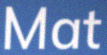
Mat